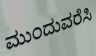
ಮುಂದುವರೆಸಿ